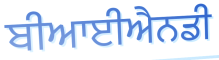
ਬੀਆਈਐਨਡੀ